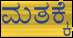
ಮತಕ್ಕೆ